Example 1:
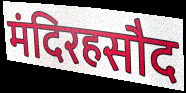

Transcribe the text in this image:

मंदिरहसौद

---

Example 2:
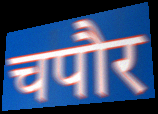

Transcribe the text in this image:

चपौर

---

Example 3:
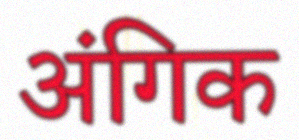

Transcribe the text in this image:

अंगिक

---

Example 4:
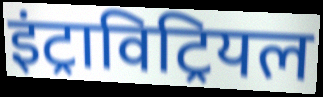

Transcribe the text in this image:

इंट्राविट्रियल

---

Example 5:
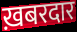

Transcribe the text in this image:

ख़बरदार